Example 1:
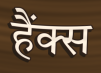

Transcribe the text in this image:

हैंक्‍स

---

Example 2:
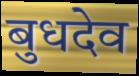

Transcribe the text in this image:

बुधदेव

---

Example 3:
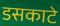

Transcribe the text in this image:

डसकाटे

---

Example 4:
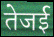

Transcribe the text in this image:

तेजई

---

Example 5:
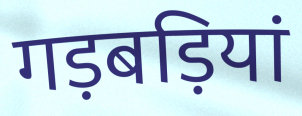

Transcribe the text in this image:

गड़बड़ियां